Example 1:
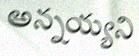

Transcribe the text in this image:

అన్నయ్యని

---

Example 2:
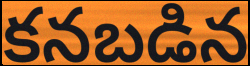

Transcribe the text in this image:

కనబడిన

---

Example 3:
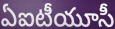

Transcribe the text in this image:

ఏఐటీయూసీ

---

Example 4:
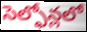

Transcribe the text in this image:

సెల్ఫోన్లలో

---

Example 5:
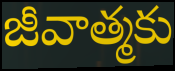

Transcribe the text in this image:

జీవాత్మకు